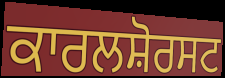
ਕਾਰਲਸ਼ੋਰਸਟ